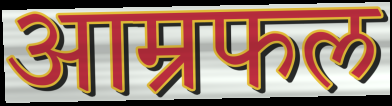
आम्रफल